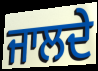
ਜਾਲਦੇ